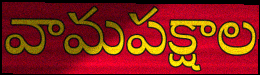
వామపక్షాల